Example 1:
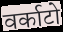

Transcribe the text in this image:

वर्काटो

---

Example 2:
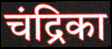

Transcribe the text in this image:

चंद्रिका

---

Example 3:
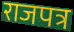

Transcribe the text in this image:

राजपत्र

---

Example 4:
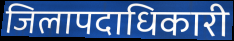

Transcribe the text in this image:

जिलापदाधिकारी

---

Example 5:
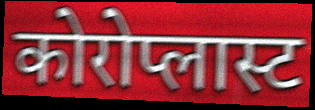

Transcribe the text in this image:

कोरोप्लास्ट